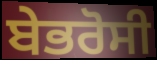
ਬੇਭਰੋਸੀ